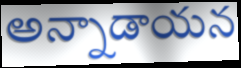
అన్నాడాయన